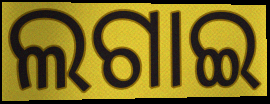
ଲଗାଇ